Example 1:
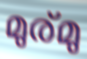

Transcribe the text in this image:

മുര്മു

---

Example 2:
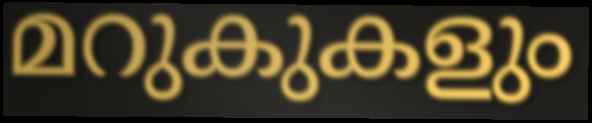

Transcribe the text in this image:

മറുകുകളും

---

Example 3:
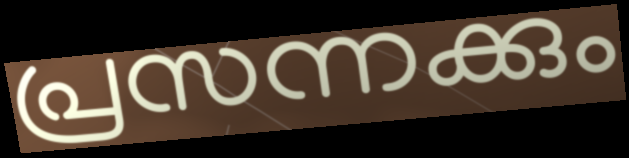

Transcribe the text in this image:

പ്രസന്നക്കും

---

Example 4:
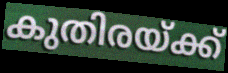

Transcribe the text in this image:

കുതിരയ്ക്ക്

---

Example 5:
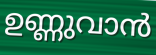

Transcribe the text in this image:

ഉണ്ണുവാൻ